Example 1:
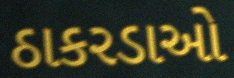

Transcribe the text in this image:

ઠાકરડાઓ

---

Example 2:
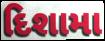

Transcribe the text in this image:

દિશામા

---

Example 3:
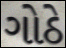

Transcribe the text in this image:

ગોઠે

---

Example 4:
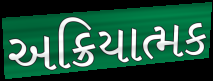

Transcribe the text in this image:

અક્રિયાત્મક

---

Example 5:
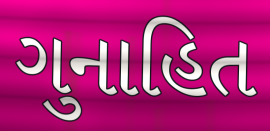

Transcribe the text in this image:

ગુનાહિત